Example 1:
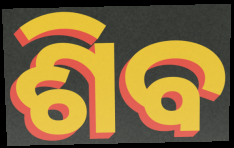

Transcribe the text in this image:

ଶିବ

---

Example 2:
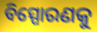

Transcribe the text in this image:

ବିସ୍ପୋରଣକୁ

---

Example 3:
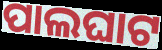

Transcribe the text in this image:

ପାଲଘାଟ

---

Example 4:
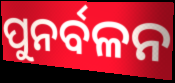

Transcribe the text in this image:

ପୁନର୍ବଳନ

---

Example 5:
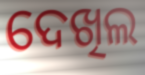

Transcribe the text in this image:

ଦେଖିଲ